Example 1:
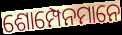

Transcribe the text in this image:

ଶୋମ୍ପେନମାନେ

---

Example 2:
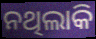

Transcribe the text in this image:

ନଥିଲାକି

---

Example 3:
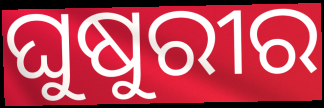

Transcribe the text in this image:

ଘୁଷୁରୀର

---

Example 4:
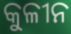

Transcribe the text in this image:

କୁଳୀନ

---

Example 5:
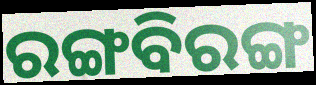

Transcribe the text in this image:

ରଙ୍ଗବିରଙ୍ଗ